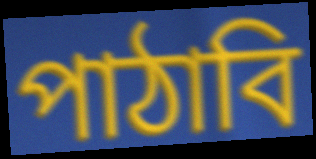
পাঠাবি